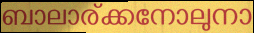
ബാലാര്ക്കനോലുനാ